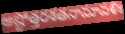
అష్టోత్తరశతనామావళిః